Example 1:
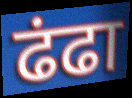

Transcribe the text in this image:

ढंढा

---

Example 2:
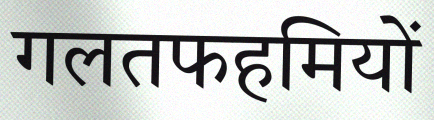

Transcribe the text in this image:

गलतफहमियों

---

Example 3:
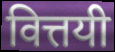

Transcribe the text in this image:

वित्तयी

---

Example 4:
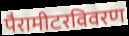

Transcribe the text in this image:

पैरामीटरविवरण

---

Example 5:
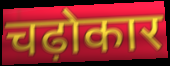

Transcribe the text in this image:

चढ़ोकार